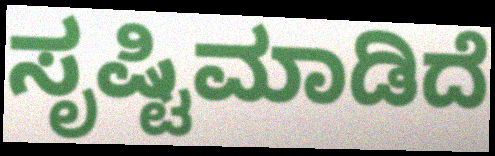
ಸೃಷ್ಟಿಮಾಡಿದೆ